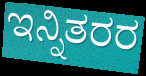
ಇನ್ನಿತರರ